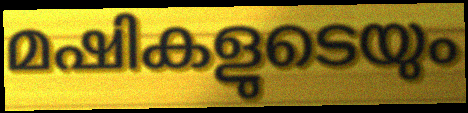
മഷികളുടെയും